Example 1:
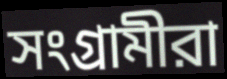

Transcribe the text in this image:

সংগ্রামীরা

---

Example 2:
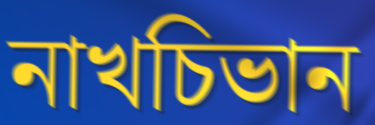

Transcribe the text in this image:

নাখচিভান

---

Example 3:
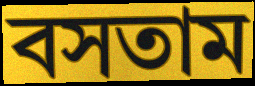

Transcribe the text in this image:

বসতাম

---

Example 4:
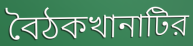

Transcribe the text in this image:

বৈঠকখানাটির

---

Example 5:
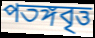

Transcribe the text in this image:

পতঙ্গবৃত্ত